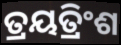
ତ୍ରୟତ୍ରିଂଶ